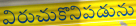
విరుచుకొనిపడును